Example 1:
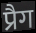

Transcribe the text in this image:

प्रैग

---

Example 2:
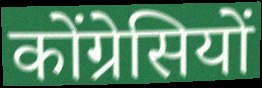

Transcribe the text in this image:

कोंग्रेसियों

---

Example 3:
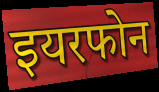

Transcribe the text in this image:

इयरफोन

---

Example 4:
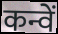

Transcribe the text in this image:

कन्वें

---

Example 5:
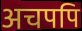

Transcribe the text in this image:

अचपपि